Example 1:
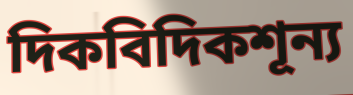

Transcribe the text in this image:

দিকবিদিকশূন্য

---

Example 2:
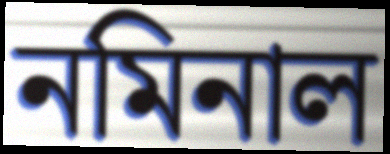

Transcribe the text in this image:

নমিনাল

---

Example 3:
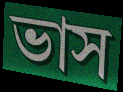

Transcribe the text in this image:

ভাস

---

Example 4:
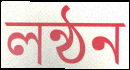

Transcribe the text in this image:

লন্ঠন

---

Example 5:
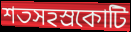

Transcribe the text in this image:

শতসহস্রকোটি